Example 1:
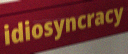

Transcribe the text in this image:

idiosyncracy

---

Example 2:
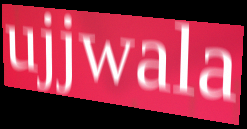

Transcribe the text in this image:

ujjwala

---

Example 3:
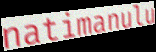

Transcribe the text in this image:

natimanulu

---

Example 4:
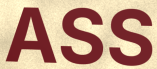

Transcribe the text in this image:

ASS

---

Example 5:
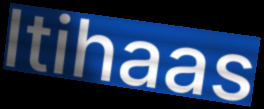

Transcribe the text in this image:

Itihaas